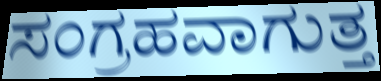
ಸಂಗ್ರಹವಾಗುತ್ತ